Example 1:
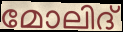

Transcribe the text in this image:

മോലിദ്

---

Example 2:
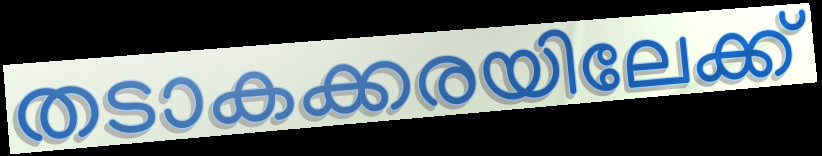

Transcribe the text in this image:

തടാകക്കരയിലേക്ക്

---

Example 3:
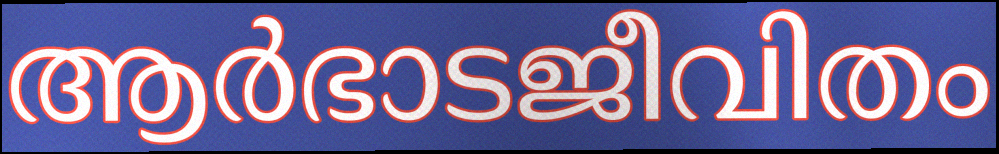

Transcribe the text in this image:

ആർഭാടജീവിതം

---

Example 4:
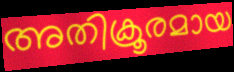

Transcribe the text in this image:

അതിക്രൂരമായ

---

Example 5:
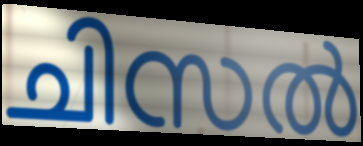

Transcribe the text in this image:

ചിസൽ